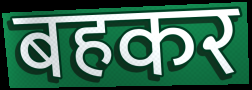
बहकर